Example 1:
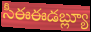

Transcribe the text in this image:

సీఈఈడబ్ల్యూ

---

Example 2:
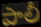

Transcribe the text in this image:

పాలీ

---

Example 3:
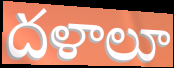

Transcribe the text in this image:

దళాలూ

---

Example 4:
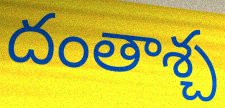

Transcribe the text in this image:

దంతాశ్చ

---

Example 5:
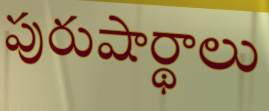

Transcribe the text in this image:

పురుషార్థాలు